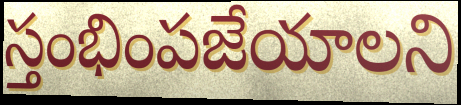
స్తంభింపజేయాలని